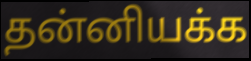
தன்னியக்க